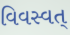
વિવસ્વત્